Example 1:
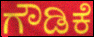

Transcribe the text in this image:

ಗೌಡಿಕೆ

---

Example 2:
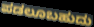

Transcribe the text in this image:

ಪಡಲೂಬಹುದು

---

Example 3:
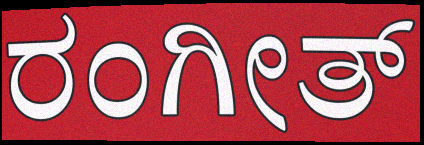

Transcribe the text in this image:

ರಂಗೀತ್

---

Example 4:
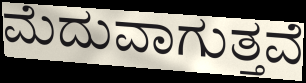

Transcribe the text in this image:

ಮೆದುವಾಗುತ್ತವೆ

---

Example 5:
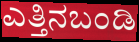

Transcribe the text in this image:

ಎತ್ತಿನಬಂಡಿ